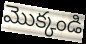
మొక్కండి